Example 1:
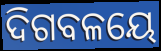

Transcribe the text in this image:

ଦିଗବଳୟେ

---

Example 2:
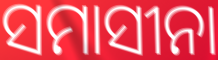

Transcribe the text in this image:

ସମାସୀନା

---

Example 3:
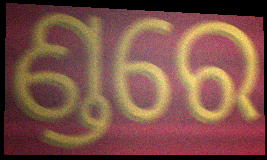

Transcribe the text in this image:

ଣ୍ଡରେ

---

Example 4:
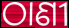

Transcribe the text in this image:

ଠାଣୀ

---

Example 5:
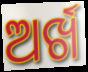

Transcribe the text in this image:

ଅର୍ଖ